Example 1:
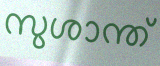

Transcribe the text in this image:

സുശാന്ത്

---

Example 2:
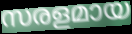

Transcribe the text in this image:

സരളമായ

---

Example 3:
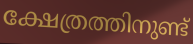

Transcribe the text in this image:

ക്ഷേത്രത്തിനുണ്ട്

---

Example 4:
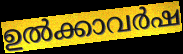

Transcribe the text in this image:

ഉൽക്കാവർഷ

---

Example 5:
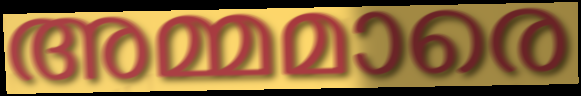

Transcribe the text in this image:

അമ്മമാരെ